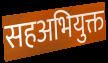
सहअभियुक्त